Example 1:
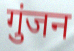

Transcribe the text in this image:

गुंजन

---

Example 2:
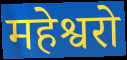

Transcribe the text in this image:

महेश्वरो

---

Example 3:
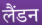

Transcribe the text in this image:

लैंडन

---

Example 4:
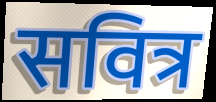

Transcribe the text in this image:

सवित्र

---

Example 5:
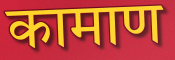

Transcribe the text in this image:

कामाण